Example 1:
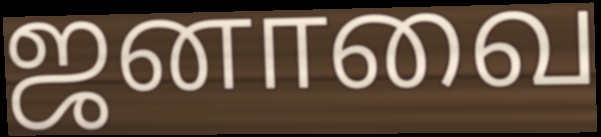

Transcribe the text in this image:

ஜனாவை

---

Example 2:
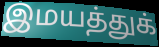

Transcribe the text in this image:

இமயத்துக்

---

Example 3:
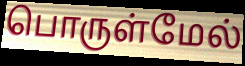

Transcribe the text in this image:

பொருள்மேல்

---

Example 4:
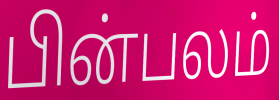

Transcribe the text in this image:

பின்பலம்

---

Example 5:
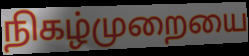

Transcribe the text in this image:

நிகழ்முறையை